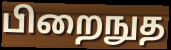
பிறைநுத